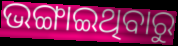
ଭଙ୍ଗାଇଥିବାରୁ